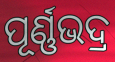
ପୂର୍ଣ୍ଣଭଦ୍ର